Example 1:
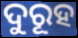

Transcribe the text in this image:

ଦୁରୂହ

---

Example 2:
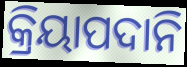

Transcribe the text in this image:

କ୍ରିୟାପଦାନି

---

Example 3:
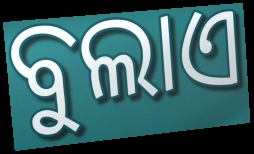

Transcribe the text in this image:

ବୁଲାଏ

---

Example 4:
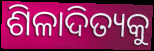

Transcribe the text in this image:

ଶିଳାଦିତ୍ୟକୁ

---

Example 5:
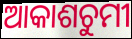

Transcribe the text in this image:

ଆକାଶଚୁମୀ